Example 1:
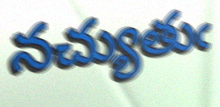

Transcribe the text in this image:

నచ్యుతుఁ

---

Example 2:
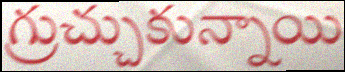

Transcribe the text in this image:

గ్రుచ్చుకున్నాయి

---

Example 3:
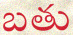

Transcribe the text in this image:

బతు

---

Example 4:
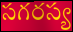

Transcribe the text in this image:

సగరస్య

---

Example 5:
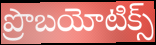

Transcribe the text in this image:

ప్రొబయోటిక్స్